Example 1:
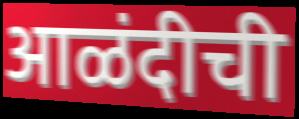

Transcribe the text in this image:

आळंदीची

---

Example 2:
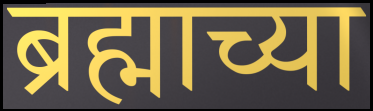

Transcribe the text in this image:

ब्रह्माच्या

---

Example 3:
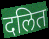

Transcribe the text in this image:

दलित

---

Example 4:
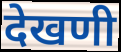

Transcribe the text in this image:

देखणी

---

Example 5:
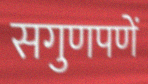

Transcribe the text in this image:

सगुणपणें